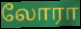
லோரா